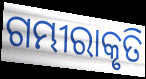
ଗମ୍ଭୀରାକୃତି